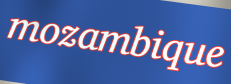
mozambique